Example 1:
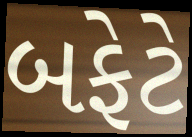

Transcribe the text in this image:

બફેટે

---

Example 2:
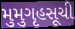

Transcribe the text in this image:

મુમુગૃહસૂચી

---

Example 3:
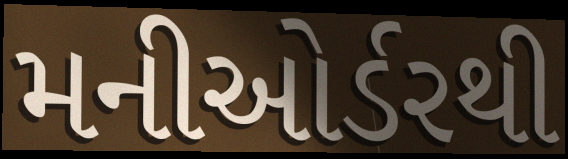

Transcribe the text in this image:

મનીઓર્ડરથી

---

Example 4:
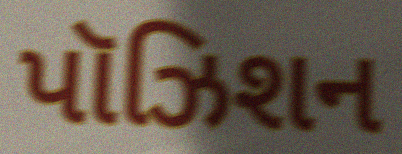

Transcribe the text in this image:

પૉઝિશન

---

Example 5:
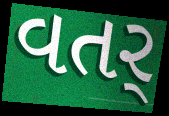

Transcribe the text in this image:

વતર્